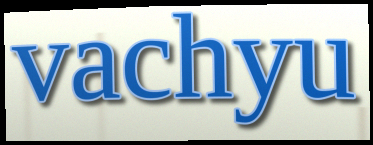
vachyu